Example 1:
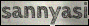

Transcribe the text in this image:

sannyasi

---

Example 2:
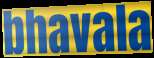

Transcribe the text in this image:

bhavala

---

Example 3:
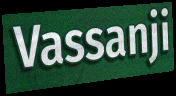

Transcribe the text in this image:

Vassanji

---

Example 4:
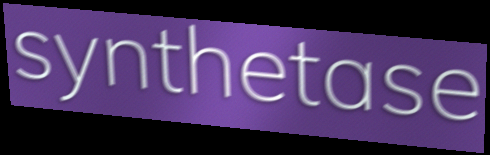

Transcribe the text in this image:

synthetase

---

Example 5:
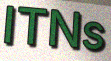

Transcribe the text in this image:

ITNs